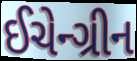
ઈચેન્ગ્રીન